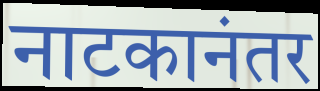
नाटकानंतर